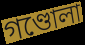
গণ্ডোলা